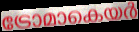
ട്രോമാകെയർ